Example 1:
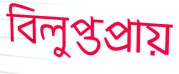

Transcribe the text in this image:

বিলুপ্তপ্ৰায়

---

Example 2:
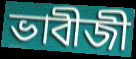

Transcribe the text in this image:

ভাবীজী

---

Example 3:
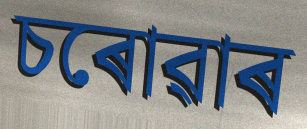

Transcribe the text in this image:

চৰোৱাৰ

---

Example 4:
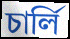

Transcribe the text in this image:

চাৰ্লি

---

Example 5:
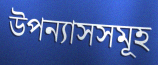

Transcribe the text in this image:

উপন্যাসসমূহ